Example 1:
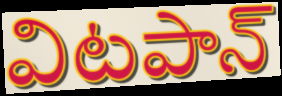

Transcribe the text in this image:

విటపాన్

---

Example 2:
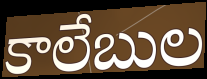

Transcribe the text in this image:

కాలేబుల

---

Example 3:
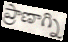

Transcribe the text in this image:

ప్రాణాగ్ని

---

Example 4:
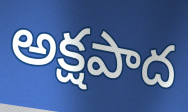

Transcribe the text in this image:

అక్షపాద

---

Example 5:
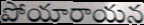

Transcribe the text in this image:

పోయారాయన